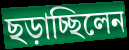
ছড়াচ্ছিলেন